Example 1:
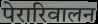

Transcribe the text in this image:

पेरारिवालन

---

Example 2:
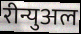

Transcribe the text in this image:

रीन्युअल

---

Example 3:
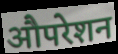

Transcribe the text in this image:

औपरेशन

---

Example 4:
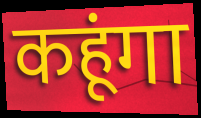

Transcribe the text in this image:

कहूंगा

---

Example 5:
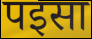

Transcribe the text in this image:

पइसा